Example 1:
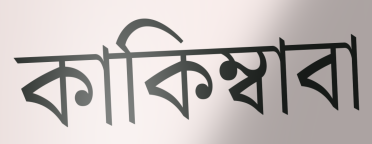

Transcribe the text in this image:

কাকিম্বাবা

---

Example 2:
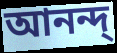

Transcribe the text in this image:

আনন্দ্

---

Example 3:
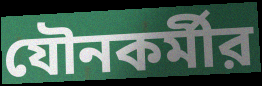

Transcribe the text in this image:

যৌনকর্মীর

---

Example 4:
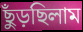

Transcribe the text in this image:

ছুঁড়ছিলাম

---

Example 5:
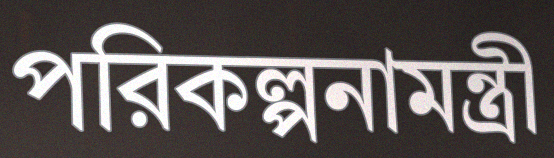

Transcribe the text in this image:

পরিকল্পনামন্ত্রী